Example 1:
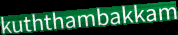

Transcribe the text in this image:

kuththambakkam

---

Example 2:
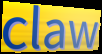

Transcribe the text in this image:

claw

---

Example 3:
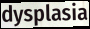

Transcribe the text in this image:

dysplasia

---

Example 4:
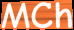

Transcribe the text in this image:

MCh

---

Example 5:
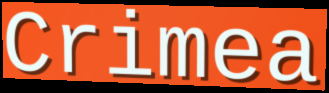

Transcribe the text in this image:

Crimea